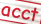
acct